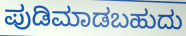
ಪುಡಿಮಾಡಬಹುದು